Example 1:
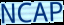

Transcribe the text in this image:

NCAP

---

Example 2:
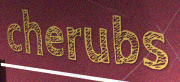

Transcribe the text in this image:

cherubs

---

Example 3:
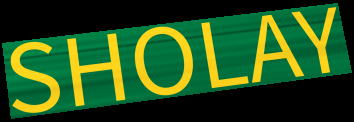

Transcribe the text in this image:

SHOLAY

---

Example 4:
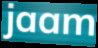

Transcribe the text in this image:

jaam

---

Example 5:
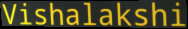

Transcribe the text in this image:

Vishalakshi